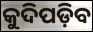
କୁଦିପଡ଼ିବ